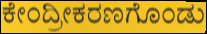
ಕೇಂದ್ರೀಕರಣಗೊಂಡು